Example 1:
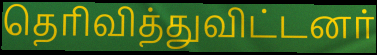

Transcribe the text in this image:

தெரிவித்துவிட்டனர்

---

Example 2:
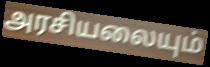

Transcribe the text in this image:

அரசியலையும்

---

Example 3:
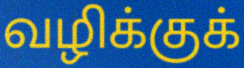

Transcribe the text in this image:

வழிக்குக்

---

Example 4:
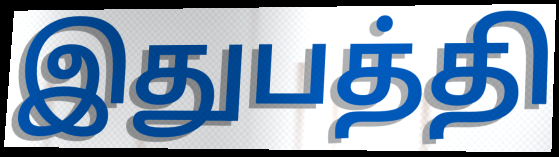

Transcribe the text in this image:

இதுபத்தி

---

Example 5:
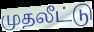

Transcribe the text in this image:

முதலீட்டு